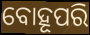
ବୋହୂପରି